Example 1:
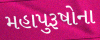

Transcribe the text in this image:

મહાપુરૂષોના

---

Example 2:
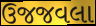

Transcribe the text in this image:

ઉજજવલા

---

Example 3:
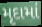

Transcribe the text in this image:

મૃદામાં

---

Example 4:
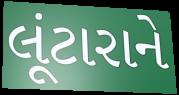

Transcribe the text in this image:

લૂંટારાને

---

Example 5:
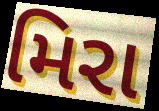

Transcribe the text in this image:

મિરા